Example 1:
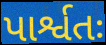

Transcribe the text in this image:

પાર્શ્વતઃ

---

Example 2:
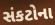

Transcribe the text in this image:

સંકટોના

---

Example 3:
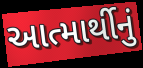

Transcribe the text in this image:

આત્માર્થીનું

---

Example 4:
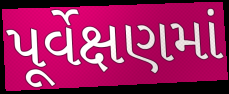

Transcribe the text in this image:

પૂર્વેક્ષણમાં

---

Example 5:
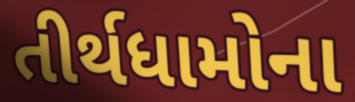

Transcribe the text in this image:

તીર્થધામોના